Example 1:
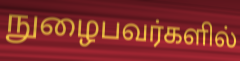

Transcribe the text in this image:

நுழைபவர்களில்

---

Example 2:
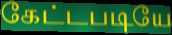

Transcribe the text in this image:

கேட்டபடியே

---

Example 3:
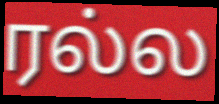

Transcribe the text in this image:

ரல்ல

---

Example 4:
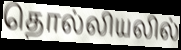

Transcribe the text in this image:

தொல்லியலில்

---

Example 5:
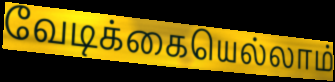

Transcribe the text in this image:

வேடிக்கையெல்லாம்